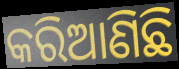
କରିଆଣିଛି